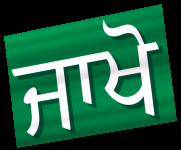
ਜਾਖੋ